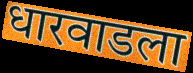
धारवाडला